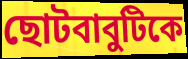
ছোটবাবুটিকে